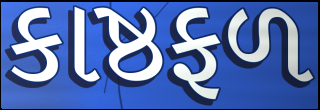
કાષ્ઠફળ